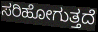
ಸರಿಹೋಗುತ್ತದೆ